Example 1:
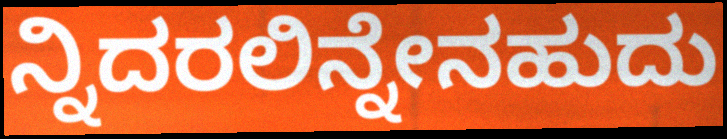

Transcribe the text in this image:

ನ್ನಿದರಲಿನ್ನೇನಹುದು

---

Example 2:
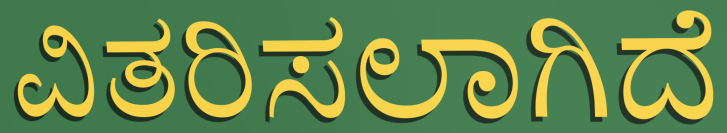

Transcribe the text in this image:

ವಿತರಿಸಲಾಗಿದೆ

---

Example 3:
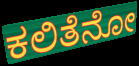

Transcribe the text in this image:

ಕಲಿತೆನೋ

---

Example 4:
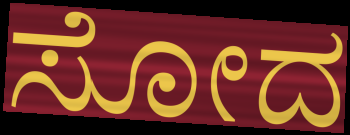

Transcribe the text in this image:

ಸೋದ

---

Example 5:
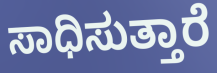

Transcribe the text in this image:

ಸಾಧಿಸುತ್ತಾರೆ